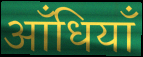
आँधियाँ